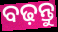
ବଢ଼ନ୍ତୁ